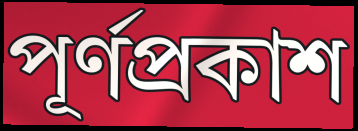
পূর্ণপ্রকাশ